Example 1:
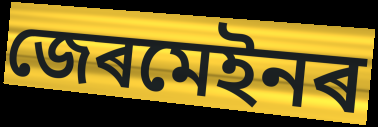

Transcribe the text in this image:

জেৰমেইনৰ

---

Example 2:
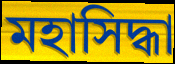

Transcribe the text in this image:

মহাসিদ্ধা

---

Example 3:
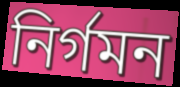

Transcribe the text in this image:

নিৰ্গমন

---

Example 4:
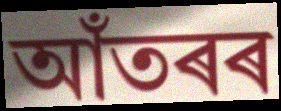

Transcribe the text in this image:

আঁতৰৰ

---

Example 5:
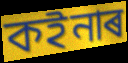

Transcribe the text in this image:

কইনাৰ